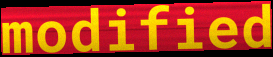
modified